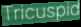
Tricuspid